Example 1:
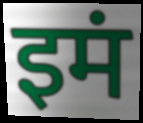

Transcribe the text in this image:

इमं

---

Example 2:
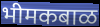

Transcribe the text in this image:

भीमकबाळ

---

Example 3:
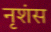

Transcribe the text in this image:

नृशंस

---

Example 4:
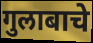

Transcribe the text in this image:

गुलाबाचे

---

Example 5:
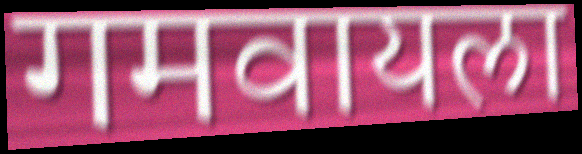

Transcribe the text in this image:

गमवायला